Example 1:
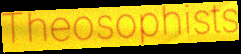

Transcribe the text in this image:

Theosophists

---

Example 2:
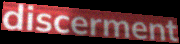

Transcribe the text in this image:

discerment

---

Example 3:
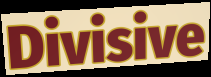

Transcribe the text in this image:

Divisive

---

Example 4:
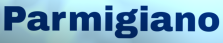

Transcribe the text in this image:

Parmigiano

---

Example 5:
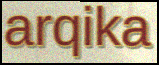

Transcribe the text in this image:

arqika